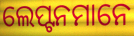
ଲେପ୍ଟନମାନେ